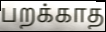
பறக்காத